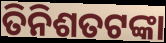
ତିନିଶତଟଙ୍କା